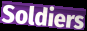
Soldiers